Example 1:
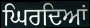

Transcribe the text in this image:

ਘਿਰਦਿਆਂ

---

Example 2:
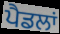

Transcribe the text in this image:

ਪੈਡਲਾਂ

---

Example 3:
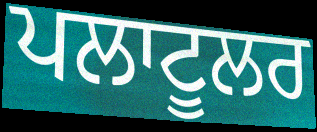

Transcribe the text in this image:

ਪਲਾਟੂਲਰ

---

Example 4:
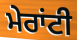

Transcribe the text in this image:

ਮੇਰਾਂਟੀ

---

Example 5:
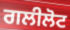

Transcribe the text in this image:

ਗਲੀਲੋਟ